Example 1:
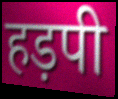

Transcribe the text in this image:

हड़पी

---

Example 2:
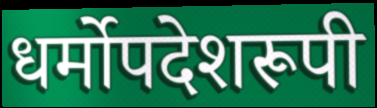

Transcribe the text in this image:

धर्मोपदेशरूपी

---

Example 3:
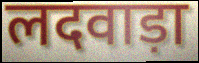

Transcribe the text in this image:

लदवाड़ा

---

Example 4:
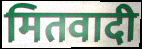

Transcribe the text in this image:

मितवादी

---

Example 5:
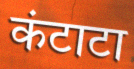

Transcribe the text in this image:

कंटाटा